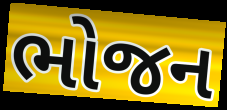
ભોજન